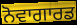
ਨੋਵਾਗਾਰਡ